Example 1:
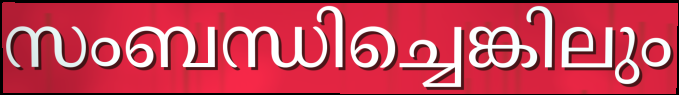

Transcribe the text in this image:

സംബന്ധിച്ചെങ്കിലും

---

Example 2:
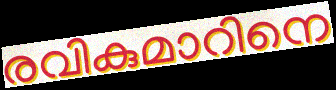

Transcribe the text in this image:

രവികുമാറിനെ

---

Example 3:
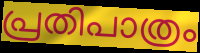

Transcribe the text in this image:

പ്രതിപാത്രം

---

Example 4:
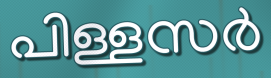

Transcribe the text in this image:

പിള്ളസർ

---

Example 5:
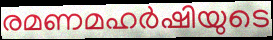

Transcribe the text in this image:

രമണമഹർഷിയുടെ